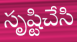
సృష్టిచేసి